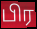
பிர